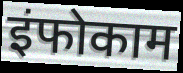
इंफोकाम